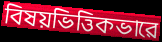
বিষয়ভিত্তিকভাৱে